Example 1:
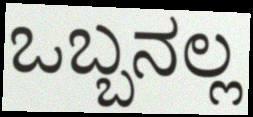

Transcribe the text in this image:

ಒಬ್ಬನಲ್ಲ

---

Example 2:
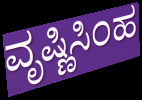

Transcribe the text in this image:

ವೃಷ್ಣಿಸಿಂಹ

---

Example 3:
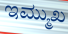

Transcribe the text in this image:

ಇಮ್ಮುಖ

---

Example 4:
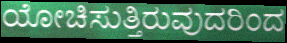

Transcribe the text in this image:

ಯೋಚಿಸುತ್ತಿರುವುದರಿಂದ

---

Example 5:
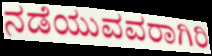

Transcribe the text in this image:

ನಡೆಯುವವರಾಗಿರಿ